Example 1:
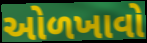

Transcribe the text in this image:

ઓળખાવો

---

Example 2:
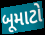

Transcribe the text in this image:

બૂમાટો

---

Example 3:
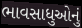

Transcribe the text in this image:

ભાવસાધુઓનું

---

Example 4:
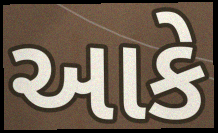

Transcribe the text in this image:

આકે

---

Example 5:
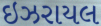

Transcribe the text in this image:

ઇઝરાયલ